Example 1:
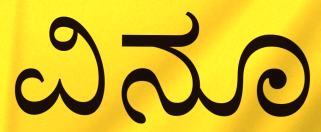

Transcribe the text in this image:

ವಿನೂ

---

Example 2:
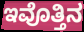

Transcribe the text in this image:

ಇವೊತ್ತಿನ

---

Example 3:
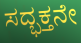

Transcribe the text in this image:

ಸದ್ಭಕ್ತನೇ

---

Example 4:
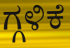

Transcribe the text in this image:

ಗ್ಗಳಿಕೆ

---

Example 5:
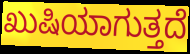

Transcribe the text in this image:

ಖುಷಿಯಾಗುತ್ತದೆ